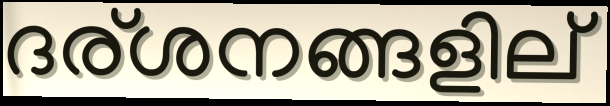
ദര്ശനങ്ങളില്